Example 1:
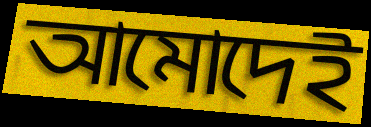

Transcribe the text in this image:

আমোদেই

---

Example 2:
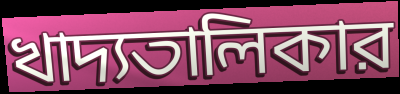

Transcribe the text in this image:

খাদ্যতালিকার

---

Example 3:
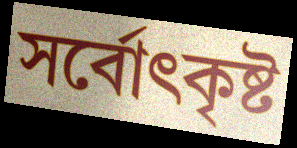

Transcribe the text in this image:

সর্বোৎকৃষ্ট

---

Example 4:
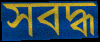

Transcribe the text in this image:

সবদ্ধ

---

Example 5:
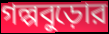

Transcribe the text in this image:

গল্পবুড়োর